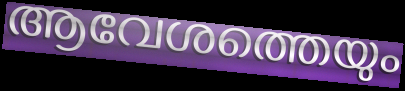
ആവേശത്തെയും